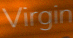
Virgin